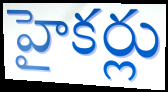
హైకర్లు